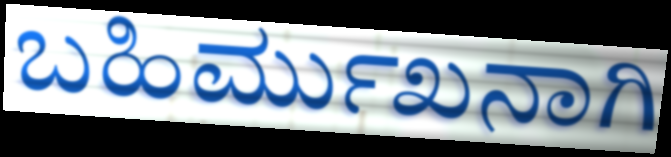
ಬಹಿರ್ಮುಖನಾಗಿ